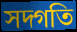
সদ্গতি